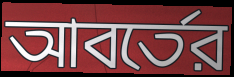
আবর্তের